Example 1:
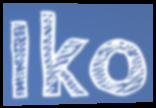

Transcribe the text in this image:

Iko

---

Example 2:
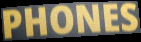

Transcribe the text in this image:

PHONES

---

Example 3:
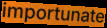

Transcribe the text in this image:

importunate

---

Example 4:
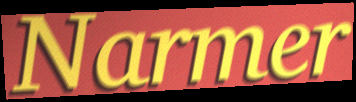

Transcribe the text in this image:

Narmer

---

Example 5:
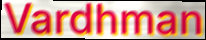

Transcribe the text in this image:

Vardhman